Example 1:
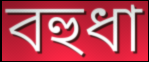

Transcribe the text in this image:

বহুধা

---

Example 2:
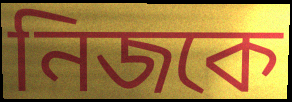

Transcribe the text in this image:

নিজকে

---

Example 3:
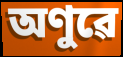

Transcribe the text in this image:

অণুৱে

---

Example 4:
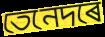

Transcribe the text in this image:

তেনেদৰে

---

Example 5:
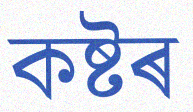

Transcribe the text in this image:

কষ্টৰ